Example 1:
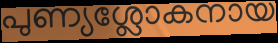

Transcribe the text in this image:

പുണ്യശ്ലോകനായ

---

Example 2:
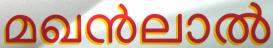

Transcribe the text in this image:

മഖൻലാൽ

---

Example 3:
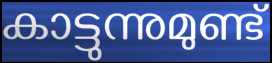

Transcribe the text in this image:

കാട്ടുന്നുമുണ്ട്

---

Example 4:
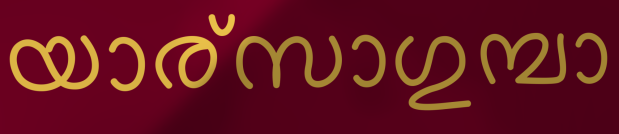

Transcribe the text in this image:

യാര്സാഗുമ്പാ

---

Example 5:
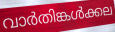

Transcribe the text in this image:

വാർതിങ്കൾക്കല